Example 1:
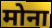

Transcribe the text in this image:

मोना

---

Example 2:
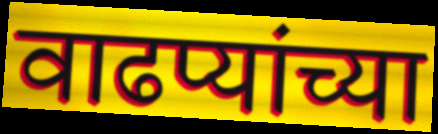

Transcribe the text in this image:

वाढप्यांच्या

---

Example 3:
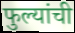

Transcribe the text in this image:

फुल्यांची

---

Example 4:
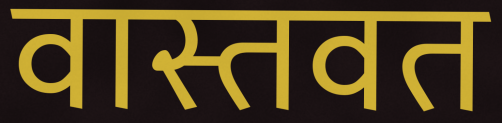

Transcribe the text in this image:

वास्‍तवत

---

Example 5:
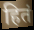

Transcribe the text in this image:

हितं